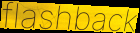
flashback